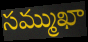
సమ్ముఖా